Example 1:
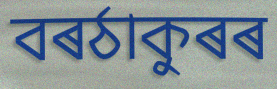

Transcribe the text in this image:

বৰঠাকুৰৰ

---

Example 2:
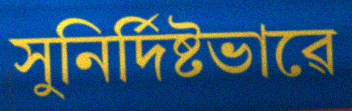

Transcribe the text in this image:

সুনিৰ্দিষ্টভাৱে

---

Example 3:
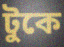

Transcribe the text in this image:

টুকে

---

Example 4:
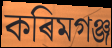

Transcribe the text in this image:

কৰিমগঞ্জ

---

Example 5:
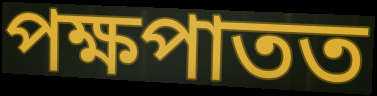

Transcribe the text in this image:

পক্ষপাতত